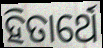
ହିତାର୍ଥେ